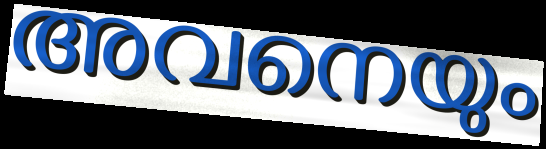
അവനെയും